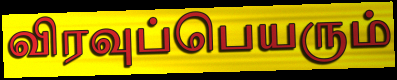
விரவுப்பெயரும்